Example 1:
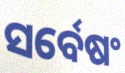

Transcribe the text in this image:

ସର୍ବେଷଂ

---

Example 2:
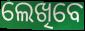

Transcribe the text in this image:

ଲେଖିବେ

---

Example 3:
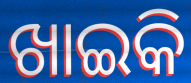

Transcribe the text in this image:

ଖାଇକି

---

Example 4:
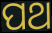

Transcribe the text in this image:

ପଥ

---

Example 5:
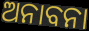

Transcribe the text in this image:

ଅନାବନା